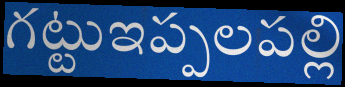
గట్టుఇప్పలపల్లి